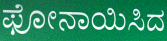
ಫೋನಾಯಿಸಿದ